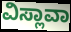
ವಿಸ್ಲಾವಾ